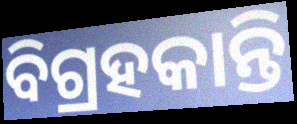
ବିଗ୍ରହକାନ୍ତି